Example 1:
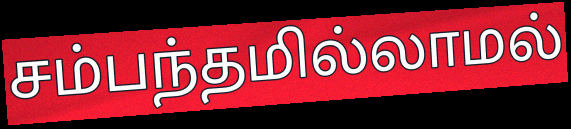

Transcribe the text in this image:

சம்பந்தமில்லாமல்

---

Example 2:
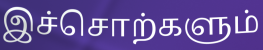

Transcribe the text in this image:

இச்சொற்களும்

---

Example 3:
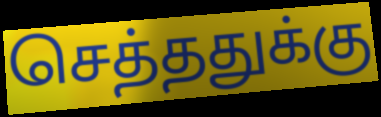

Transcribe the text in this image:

செத்ததுக்கு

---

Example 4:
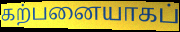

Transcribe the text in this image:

கற்பனையாகப்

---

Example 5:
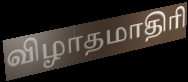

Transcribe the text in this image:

விழாதமாதிரி